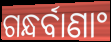
ଗନ୍ଧର୍ବାଣାଂ